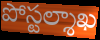
పోస్టల్శాఖ